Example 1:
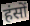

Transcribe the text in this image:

हंसों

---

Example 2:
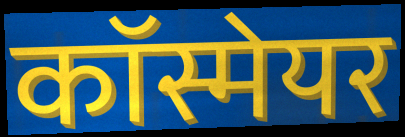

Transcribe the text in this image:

कॉस्मेयर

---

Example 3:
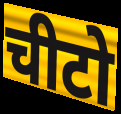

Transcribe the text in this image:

चीटो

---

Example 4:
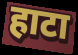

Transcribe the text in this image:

हाटा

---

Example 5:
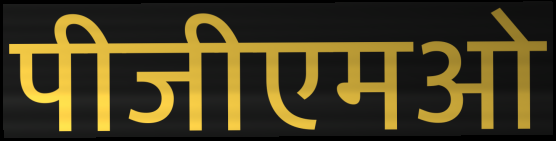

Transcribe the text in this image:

पीजीएमओ